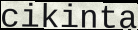
cikinta